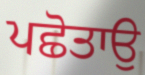
ਪਛੋਤਾਉ